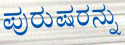
ಪುರುಷರನ್ನು